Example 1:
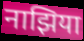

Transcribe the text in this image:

नाझिया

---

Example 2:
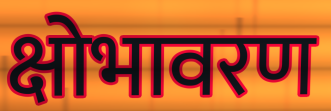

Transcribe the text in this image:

क्षोभावरण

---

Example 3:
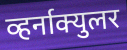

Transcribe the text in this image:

व्हर्नाक्युलर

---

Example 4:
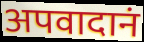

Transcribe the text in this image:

अपवादानं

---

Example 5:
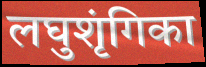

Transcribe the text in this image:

लघुशृंगिका